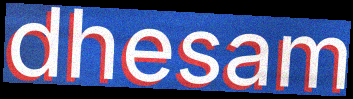
dhesam